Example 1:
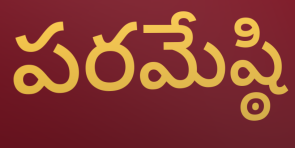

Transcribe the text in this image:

పరమేష్ఠి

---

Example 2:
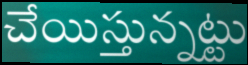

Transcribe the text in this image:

చేయిస్తున్నట్టు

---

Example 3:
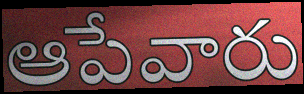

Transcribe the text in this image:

ఆపేవారు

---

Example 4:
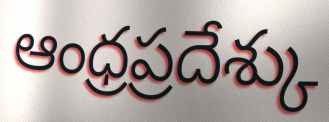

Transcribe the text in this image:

ఆంధ్రప్రదేశ్కు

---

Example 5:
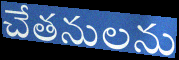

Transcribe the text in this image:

చేతనులను